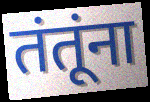
तंतूंना